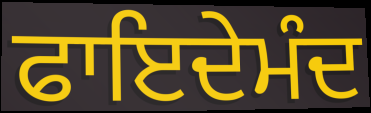
ਫਾਇਦੇਮੰਦ